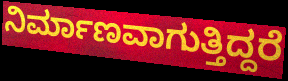
ನಿರ್ಮಾಣವಾಗುತ್ತಿದ್ದರೆ